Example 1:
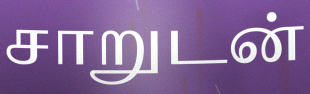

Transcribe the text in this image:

சாறுடன்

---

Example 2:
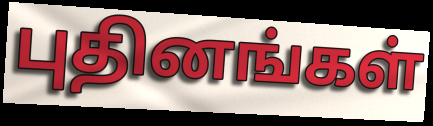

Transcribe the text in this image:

புதினங்கள்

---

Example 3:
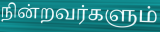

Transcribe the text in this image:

நின்றவர்களும்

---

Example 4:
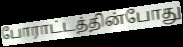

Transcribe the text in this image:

போராட்டத்தின்போது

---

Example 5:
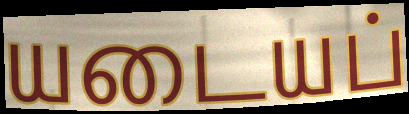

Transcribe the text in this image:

யடையப்